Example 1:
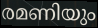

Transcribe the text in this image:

രമണിയും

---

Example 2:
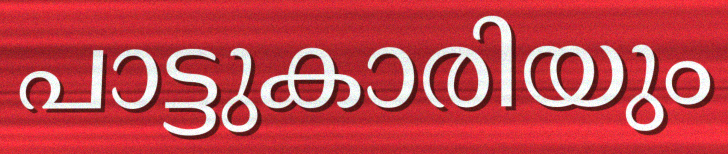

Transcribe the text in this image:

പാട്ടുകാരിയും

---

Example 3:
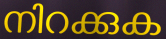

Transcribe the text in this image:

നിറക്കുക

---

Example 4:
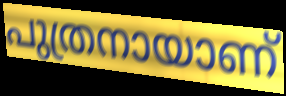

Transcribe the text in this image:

പുത്രനായാണ്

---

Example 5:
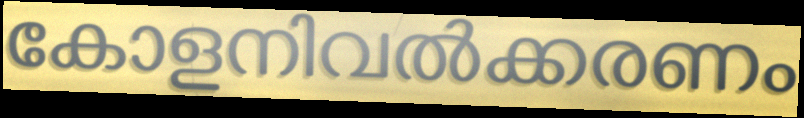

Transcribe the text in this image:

കോളനിവൽക്കരണം